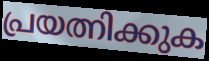
പ്രയത്നിക്കുക